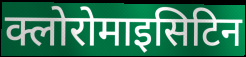
क्लोरोमाइसिटिन